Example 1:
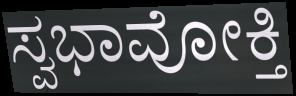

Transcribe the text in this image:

ಸ್ವಭಾವೋಕ್ತಿ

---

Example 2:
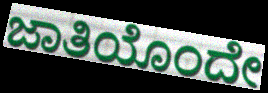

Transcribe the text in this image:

ಜಾತಿಯೊಂದೇ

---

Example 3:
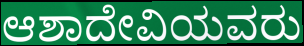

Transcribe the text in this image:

ಆಶಾದೇವಿಯವರು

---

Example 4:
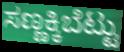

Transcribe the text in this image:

ಸಣ್ಣಕ್ಕಿಬೆಟ್ಟು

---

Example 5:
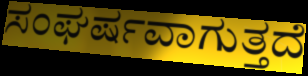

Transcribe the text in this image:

ಸಂಘರ್ಷವಾಗುತ್ತದೆ